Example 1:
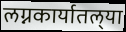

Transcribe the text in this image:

लग्नकार्यातल्या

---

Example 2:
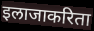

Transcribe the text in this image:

इलाजाकरिता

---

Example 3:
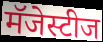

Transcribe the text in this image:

मॅजेस्टीज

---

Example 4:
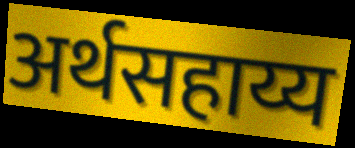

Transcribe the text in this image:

अर्थसहाय्य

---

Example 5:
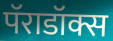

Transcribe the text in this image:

पॅराडॉक्स